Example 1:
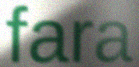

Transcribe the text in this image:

fara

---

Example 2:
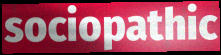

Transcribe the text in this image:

sociopathic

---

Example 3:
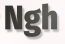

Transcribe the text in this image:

Ngh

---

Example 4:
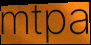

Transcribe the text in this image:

mtpa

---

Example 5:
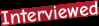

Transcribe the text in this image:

Interviewed